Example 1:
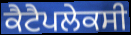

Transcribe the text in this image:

ਕੈਟੈਪਲੇਕਸੀ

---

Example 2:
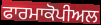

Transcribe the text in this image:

ਫਾਰਮਾਕੋਪੀਅਲ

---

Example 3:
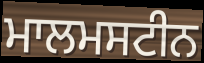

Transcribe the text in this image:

ਮਾਲਮਸਟੀਨ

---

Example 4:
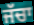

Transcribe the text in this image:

ਜੱਚਾ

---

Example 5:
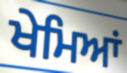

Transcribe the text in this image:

ਖੇਮਿਆਂ